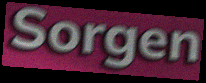
Sorgen